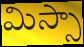
మిస్సా